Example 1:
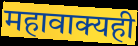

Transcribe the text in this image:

महावाक्यही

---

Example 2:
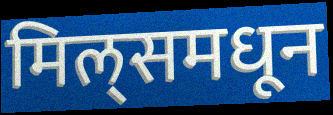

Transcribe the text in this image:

मिल्समधून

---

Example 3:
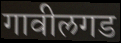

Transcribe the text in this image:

गावीलगड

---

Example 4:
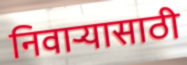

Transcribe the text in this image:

निवाऱ्यासाठी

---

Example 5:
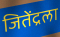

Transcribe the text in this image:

जितेंद्रला